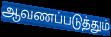
ஆவணப்படுத்தும்